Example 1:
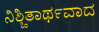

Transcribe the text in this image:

ನಿಶ್ಚಿತಾರ್ಥವಾದ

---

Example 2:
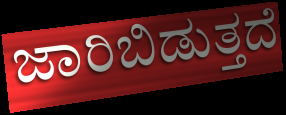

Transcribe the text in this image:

ಜಾರಿಬಿಡುತ್ತದೆ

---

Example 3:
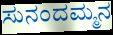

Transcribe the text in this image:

ಸುನಂದಮ್ಮನ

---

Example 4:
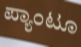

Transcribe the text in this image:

ಪ್ಯಾಂಟೂ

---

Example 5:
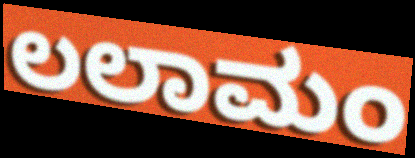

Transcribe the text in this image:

ಲಲಾಮಂ